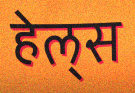
हेल्स